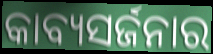
କାବ୍ୟସର୍ଜନାର